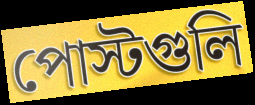
পোস্টগুলি